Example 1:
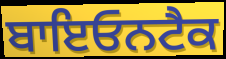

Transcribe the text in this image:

ਬਾਇਓਨਟੈਕ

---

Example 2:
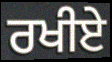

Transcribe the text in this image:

ਰਖੀਏ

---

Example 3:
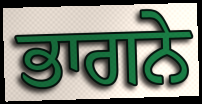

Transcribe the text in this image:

ਭਾਗਨੇ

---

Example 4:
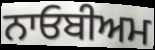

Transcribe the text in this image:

ਨਾਓਬੀਅਮ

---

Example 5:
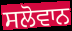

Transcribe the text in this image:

ਸਲੋਵਾਨ